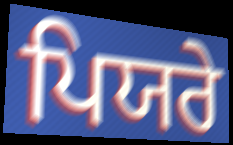
ਪਿਯਰੇ